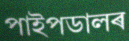
পাইপডালৰ